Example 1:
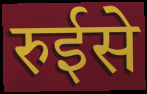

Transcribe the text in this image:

रुईसे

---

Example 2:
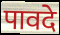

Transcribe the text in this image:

पावदे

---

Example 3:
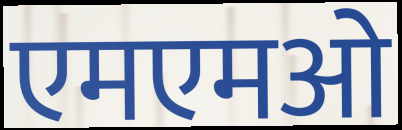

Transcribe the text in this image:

एमएमओ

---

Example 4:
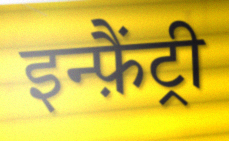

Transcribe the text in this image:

इन्फ़ैंट्री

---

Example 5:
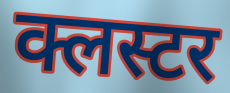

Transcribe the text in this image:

क्लस्टर